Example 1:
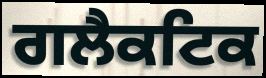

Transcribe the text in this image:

ਗਲੈਕਟਿਕ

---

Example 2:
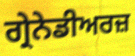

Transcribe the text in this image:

ਗ੍ਰੇਨੇਡੀਅਰਜ਼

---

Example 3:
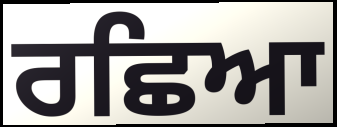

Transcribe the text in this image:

ਰਛਿਆ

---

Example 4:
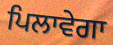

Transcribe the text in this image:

ਪਿਲਾਵੇਗਾ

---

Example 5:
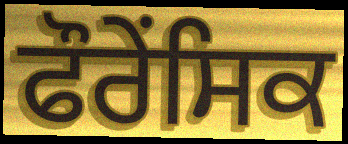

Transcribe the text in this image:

ਫੌਰੇਂਸਿਕ